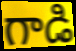
గాడి